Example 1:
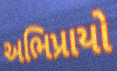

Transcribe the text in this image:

અભિપ્રાયો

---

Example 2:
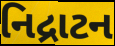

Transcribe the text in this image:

નિદ્રાટન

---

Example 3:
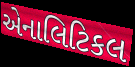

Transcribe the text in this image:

એનાલિટિકલ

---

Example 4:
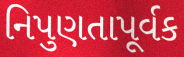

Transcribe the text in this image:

નિપુણતાપૂર્વક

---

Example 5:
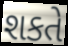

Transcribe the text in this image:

શકતે